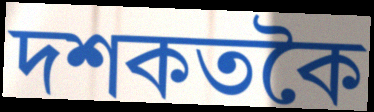
দশকতকৈ